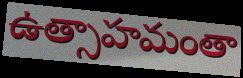
ఉత్సాహమంతా